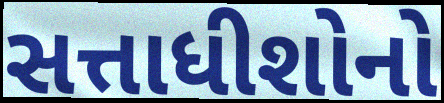
સત્તાધીશોનો